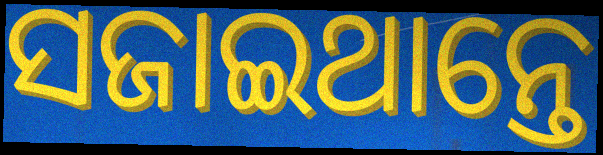
ସଜାଇଥାନ୍ତେ